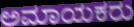
ಅಮಾಯಕರು